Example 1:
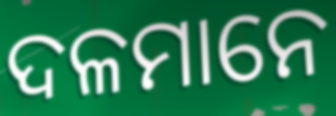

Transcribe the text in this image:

ଦଳମାନେ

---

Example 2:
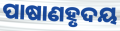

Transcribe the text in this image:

ପାଷାଣହୃଦୟ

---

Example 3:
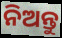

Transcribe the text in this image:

ନିଅନ୍ତୁ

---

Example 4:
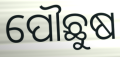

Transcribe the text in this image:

ପୌଛୁଷ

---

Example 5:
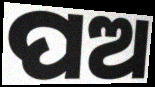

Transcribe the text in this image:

ପଅ